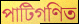
পাটিগণিত